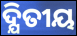
ଦ୍ଯିତୀୟ